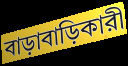
বাড়াবাড়িকারী